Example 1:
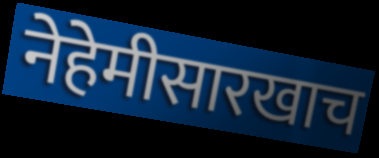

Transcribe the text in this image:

नेहेमीसारखाच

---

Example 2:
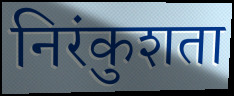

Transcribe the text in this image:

निरंकुशता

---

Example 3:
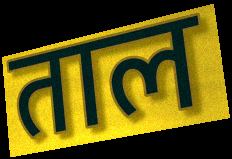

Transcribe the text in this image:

ताल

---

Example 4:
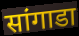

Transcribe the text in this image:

सांगाडा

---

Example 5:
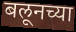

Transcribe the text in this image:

बलूनच्या